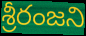
శ్రీరంజని